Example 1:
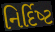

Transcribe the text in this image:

નિર્દિષ્‍ટ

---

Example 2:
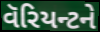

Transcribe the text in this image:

વૅરિયન્ટને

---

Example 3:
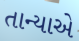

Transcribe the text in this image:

તાન્યાએ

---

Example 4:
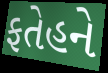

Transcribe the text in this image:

ફતેહને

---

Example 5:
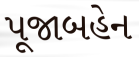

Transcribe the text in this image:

પૂજાબહેન